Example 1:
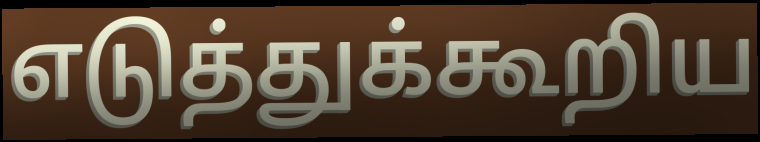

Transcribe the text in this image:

எடுத்துக்கூறிய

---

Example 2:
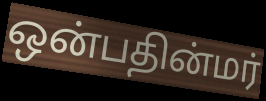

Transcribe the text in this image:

ஒன்பதின்மர்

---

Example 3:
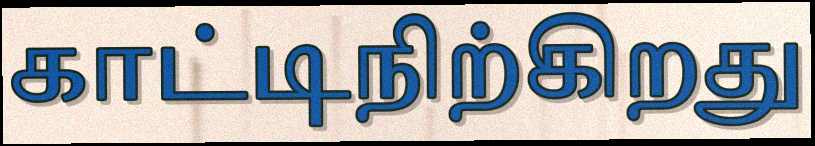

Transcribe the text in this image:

காட்டிநிற்கிறது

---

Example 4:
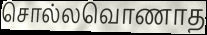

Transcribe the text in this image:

சொல்லவொணாத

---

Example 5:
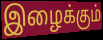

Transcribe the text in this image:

இழைக்கும்